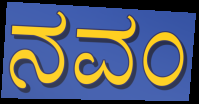
ನವಂ